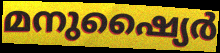
മനുഷ്യൈർ